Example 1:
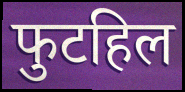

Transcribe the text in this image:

फुटहिल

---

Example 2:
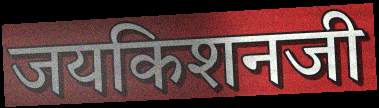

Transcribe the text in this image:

जयकिशनजी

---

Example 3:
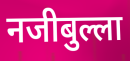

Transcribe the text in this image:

नजीबुल्ला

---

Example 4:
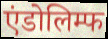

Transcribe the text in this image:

एंडोलिम्फ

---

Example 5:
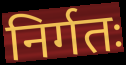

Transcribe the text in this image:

निर्गतः